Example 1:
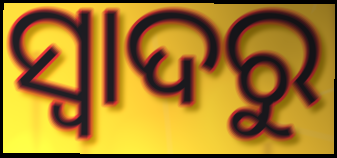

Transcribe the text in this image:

ସ୍ୱାଦରୁ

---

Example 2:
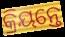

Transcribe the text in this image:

କ୍ରିୟନ୍ତେ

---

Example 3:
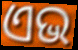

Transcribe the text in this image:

ଏଭ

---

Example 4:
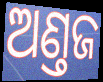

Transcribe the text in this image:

ଅଣ୍ତଜ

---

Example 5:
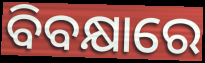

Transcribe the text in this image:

ବିବକ୍ଷାରେ